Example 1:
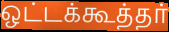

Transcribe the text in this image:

ஒட்டக்கூத்தர்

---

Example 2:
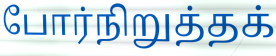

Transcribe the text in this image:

போர்நிறுத்தக்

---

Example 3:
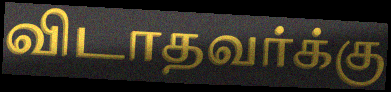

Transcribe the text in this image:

விடாதவர்க்கு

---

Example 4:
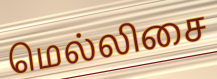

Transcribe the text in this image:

மெல்லிசை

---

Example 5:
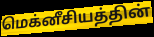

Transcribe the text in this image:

மெக்னீசியத்தின்